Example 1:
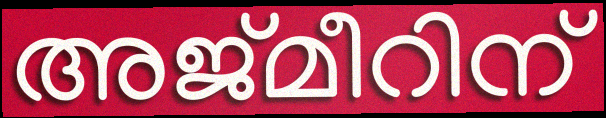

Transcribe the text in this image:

അജ്മീറിന്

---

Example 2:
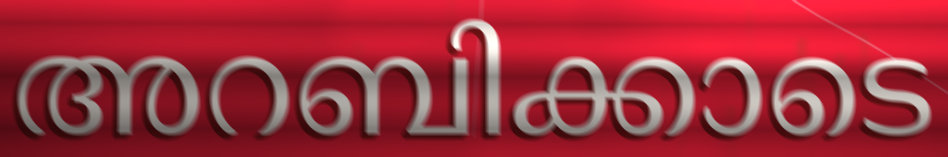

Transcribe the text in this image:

അറബിക്കാടെ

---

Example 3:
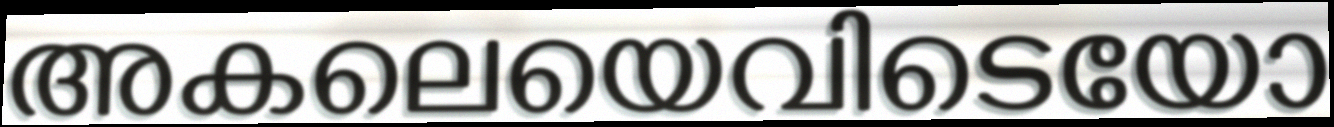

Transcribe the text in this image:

അകലെയെവിടെയോ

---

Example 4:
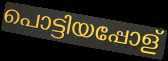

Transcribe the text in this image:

പൊട്ടിയപ്പോള്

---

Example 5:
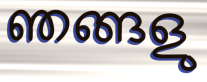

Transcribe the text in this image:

ഞങ്ങളു